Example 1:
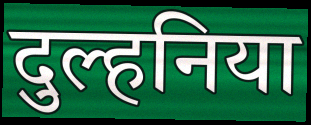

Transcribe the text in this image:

दुल्हनिया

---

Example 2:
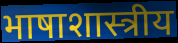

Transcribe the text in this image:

भाषाशास्त्रीय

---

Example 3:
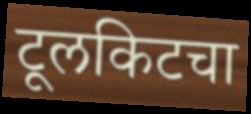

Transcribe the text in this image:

टूलकिटचा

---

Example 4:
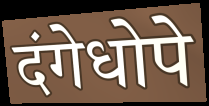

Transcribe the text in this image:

दंगेधोपे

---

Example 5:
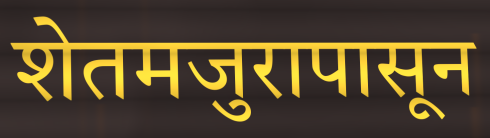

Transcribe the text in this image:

शेतमजुरापासून